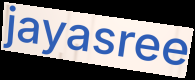
jayasree